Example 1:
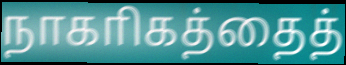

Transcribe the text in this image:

நாகரிகத்தைத்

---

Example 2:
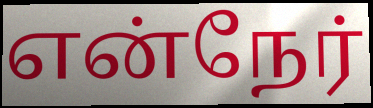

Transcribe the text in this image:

என்நேர்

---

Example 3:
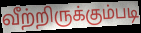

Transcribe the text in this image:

வீற்றிருக்கும்படி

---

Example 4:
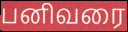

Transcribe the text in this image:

பனிவரை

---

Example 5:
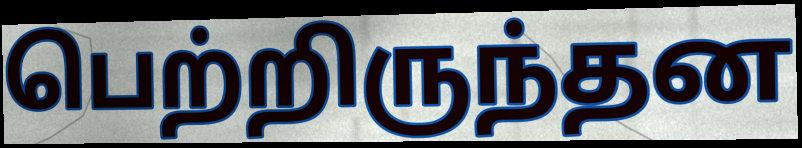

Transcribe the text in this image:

பெற்றிருந்தன